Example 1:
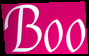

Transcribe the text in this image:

Boo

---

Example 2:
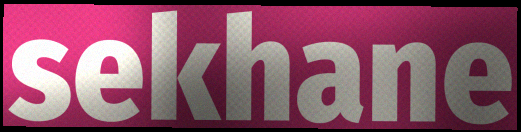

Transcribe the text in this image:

sekhane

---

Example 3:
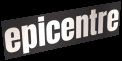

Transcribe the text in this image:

epicentre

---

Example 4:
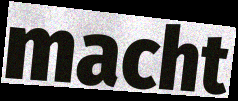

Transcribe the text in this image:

macht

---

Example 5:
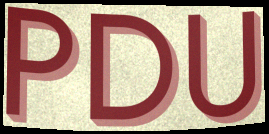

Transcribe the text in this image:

PDU